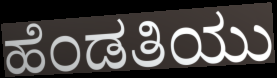
ಹೆಂಡತಿಯು